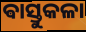
ଵାସ୍ତୁକଳା